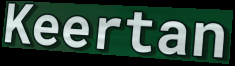
Keertan